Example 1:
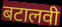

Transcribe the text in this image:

बटालवी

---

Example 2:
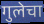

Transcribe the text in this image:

गुलेचा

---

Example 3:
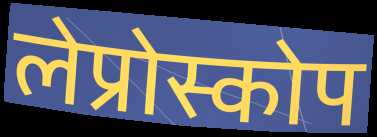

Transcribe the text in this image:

लेप्रोस्कोप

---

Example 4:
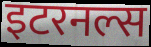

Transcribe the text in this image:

इटरनल्स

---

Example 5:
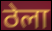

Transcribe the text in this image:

ठेला